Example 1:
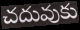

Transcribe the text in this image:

చదువుకు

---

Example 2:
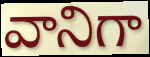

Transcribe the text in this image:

వానిగా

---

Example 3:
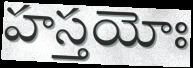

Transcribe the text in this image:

హస్తయోః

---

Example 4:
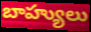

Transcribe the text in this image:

బాహ్యులు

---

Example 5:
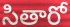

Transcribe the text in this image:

సితారో